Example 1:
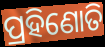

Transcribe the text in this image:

ପ୍ରହିଣୋତି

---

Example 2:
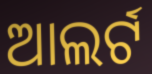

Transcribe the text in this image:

ଆଲର୍ଟ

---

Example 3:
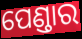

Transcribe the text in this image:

ପେଣ୍ଡାର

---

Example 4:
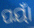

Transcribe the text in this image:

ପୟାଁ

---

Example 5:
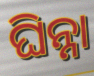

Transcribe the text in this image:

ଘିନ୍ନା